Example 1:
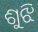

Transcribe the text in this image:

ଶୁଝି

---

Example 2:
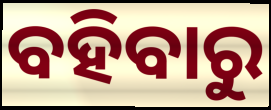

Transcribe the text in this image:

ବହିବାରୁ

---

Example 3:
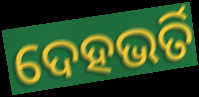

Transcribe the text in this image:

ଦେହଭର୍ତି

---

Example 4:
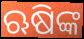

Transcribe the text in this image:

ଋଷିଙ୍କ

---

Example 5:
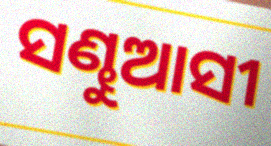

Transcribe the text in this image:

ସଣ୍ଢୁଆସୀ